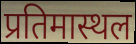
प्रतिमास्थल